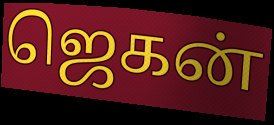
ஜெகன்